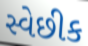
સ્વેછીક